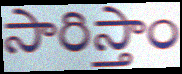
సారిస్తాం